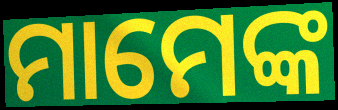
ମାମେଙ୍କ